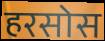
हरसोस